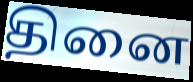
தினை